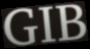
GIB